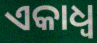
ଏକାଧ୍ଵ